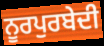
ਨੂਰਪੁਰਬੇਦੀ